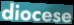
diocese